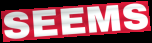
SEEMS